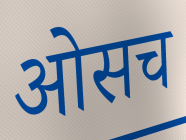
ओसच